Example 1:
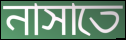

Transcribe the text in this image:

নাসাতে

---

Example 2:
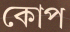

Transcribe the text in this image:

কোপ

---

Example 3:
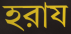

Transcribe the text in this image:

হরায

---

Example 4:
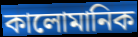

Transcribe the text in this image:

কালোমানিক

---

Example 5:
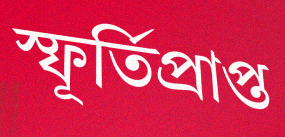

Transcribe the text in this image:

স্ফূর্তিপ্রাপ্ত